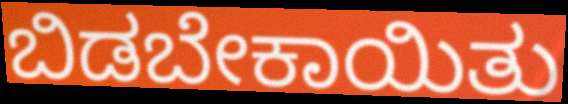
ಬಿಡಬೇಕಾಯಿತು